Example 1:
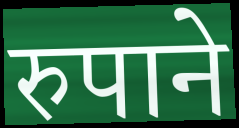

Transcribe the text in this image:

रुपाने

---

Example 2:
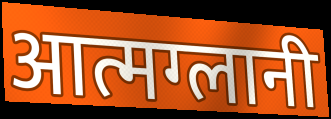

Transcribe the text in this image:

आत्मग्लानी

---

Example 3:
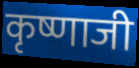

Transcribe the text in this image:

कृष्णाजी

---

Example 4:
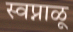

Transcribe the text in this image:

स्वप्नाळू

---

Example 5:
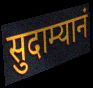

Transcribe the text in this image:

सुदाम्यानं